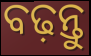
ବଢ଼ନ୍ତୁ